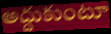
అద్దుకుంటూ